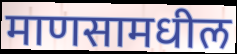
माणसामधील